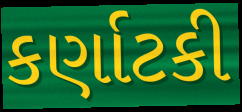
કર્ણાટકી